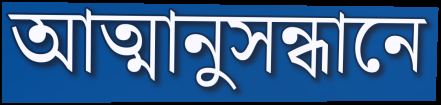
আত্মানুসন্ধানে